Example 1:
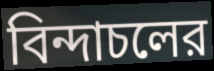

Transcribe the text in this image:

বিন্দাচলের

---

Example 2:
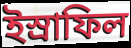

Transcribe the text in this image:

ইস্রাফিল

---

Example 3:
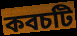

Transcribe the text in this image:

কবচটি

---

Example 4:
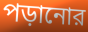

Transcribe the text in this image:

পড়ানোর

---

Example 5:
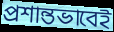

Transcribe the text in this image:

প্রশান্তভাবেই